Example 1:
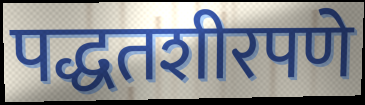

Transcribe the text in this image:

पद्धतशीरपणे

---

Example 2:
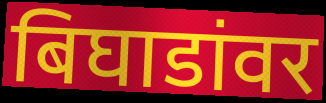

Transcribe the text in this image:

बिघाडांवर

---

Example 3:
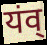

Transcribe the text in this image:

यंव्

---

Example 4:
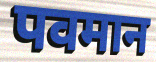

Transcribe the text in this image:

पवमान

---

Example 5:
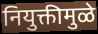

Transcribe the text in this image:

नियुक्तीमुळे